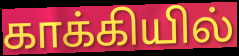
காக்கியில்